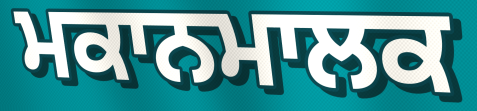
ਮਕਾਨਮਾਲਕ